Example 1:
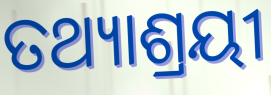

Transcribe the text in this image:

ତଥ୍ୟାଶ୍ରୟୀ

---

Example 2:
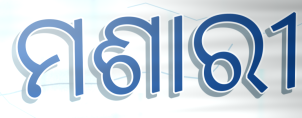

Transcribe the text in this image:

ମଶାରୀ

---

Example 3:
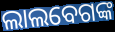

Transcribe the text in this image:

ଲାଲବେଗଙ୍କ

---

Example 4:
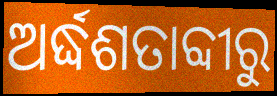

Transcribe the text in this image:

ଅର୍ଦ୍ଧଶତାବ୍ଦୀରୁ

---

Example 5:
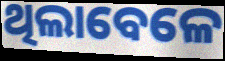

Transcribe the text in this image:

ଥିଲାବେଳେ